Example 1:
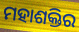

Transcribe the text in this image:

ମହାଶକ୍ତିର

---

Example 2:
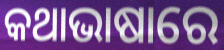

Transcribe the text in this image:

କଥାଭାଷାରେ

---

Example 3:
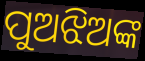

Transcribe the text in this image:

ପୁଅଝିଅଙ୍କ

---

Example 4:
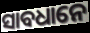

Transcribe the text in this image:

ସାବଧାନେ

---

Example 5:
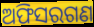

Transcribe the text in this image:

ଅଫିସରଗଣ